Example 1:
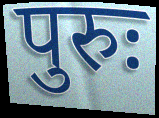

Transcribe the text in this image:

पुरुः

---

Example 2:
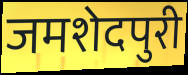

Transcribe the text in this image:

जमशेदपुरी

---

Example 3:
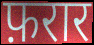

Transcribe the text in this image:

फ़रार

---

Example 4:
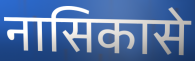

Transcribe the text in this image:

नासिकासे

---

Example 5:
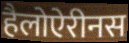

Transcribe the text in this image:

हैलोऐरीनस